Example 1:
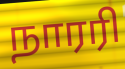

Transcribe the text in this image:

நாரரி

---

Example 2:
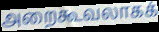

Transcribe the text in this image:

அறைகூவலாகக்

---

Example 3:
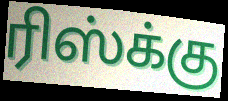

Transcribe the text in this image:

ரிஸ்க்கு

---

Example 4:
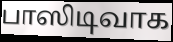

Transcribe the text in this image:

பாஸிடிவாக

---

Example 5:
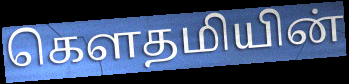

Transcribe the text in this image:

கெளதமியின்